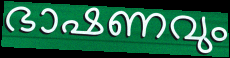
ഭാഷണവും